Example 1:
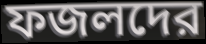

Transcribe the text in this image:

ফজলদের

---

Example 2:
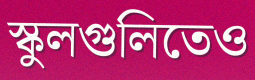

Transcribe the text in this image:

স্কুলগুলিতেও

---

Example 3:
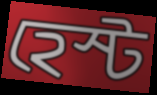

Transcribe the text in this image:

হেস্ট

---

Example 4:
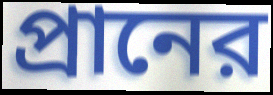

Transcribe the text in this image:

প্রানের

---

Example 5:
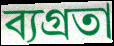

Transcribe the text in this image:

ব্যগ্রতা